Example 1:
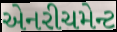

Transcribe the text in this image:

એનરીચમેન્ટ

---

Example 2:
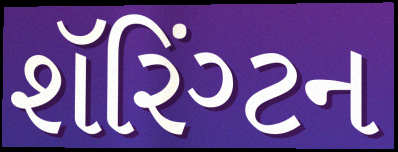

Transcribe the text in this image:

શૅરિંગ્ટન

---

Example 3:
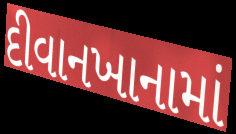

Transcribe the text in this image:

દીવાનખાનામાં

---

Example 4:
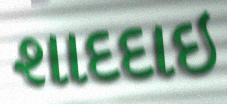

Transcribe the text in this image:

શાદદાઇ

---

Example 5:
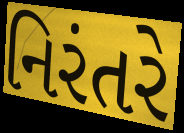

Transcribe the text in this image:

નિરંતરે